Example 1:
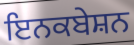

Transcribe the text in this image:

ਇਨਕਬੇਸ਼ਨ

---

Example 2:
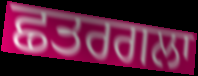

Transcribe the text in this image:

ਛਤਰਗਲਾ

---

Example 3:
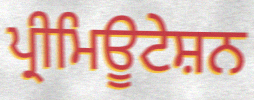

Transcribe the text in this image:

ਪ੍ਰੀਮਿਊਟੇਸ਼ਨ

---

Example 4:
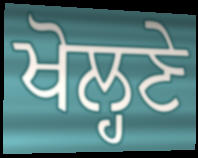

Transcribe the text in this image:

ਖੋਲ੍ਹਣੇ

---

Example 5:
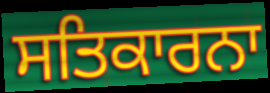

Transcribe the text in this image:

ਸਤਿਕਾਰਨਾ